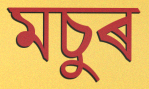
মচুৰ